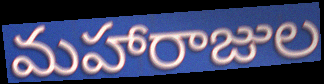
మహారాజుల